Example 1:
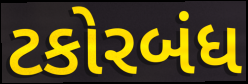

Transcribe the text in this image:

ટકોરબંધ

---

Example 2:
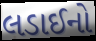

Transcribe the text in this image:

લડાઈનો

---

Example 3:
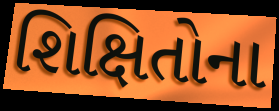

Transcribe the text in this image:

શિક્ષિતોના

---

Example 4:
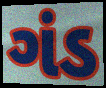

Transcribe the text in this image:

ગંડ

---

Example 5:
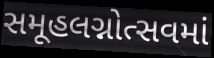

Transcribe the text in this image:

સમૂહલગ્નોત્સવમાં